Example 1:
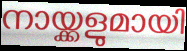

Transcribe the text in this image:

നായ്ക്കളുമായി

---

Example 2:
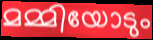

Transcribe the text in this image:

മമ്മിയോടും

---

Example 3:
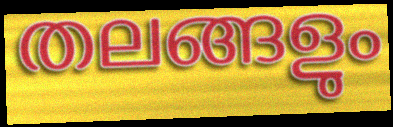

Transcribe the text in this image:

തലങ്ങളും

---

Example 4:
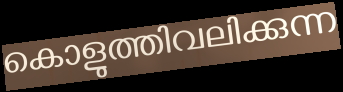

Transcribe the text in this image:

കൊളുത്തിവലിക്കുന്ന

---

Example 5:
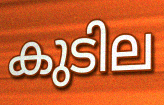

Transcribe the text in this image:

കുടില